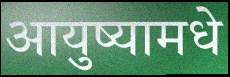
आयुष्यामधे